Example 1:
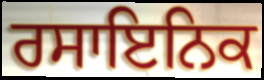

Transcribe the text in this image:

ਰਸਾਇਨਿਕ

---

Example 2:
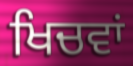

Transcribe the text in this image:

ਖਿਚਵਾਂ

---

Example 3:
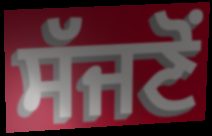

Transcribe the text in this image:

ਸੱਜਣੋਂ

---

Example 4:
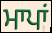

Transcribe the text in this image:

ਮਾਪਾਂ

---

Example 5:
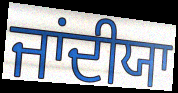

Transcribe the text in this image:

ਜਾਂਦੀਯਾ